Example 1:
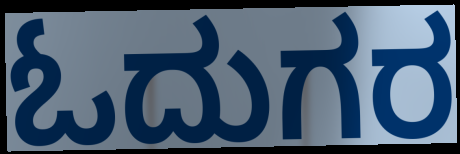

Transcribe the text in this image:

ಓದುಗರ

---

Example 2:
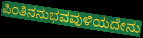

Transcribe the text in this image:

ಪಿಂತಿನನುಭವವುಳಿಯದೇನು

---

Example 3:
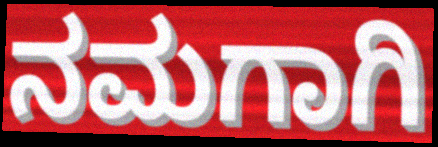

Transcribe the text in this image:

ನಮಗಾಗಿ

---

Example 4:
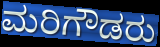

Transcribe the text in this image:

ಮರಿಗೌಡರು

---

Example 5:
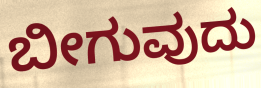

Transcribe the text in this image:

ಬೀಗುವುದು